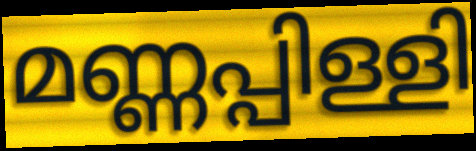
മണ്ണപ്പിള്ളി